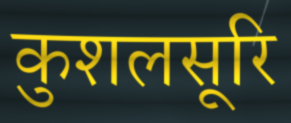
कुशलसूरि